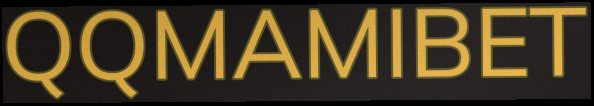
QQMAMIBET